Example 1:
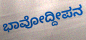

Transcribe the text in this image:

ಭಾವೋದ್ದೀಪನ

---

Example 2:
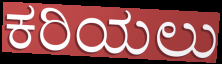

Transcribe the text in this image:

ಕರಿಯಲು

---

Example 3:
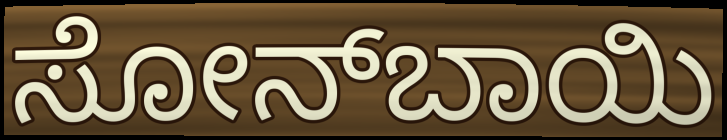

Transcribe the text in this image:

ಸೋನ್‍ಬಾಯಿ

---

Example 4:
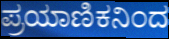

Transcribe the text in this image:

ಪ್ರಯಾಣಿಕನಿಂದ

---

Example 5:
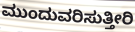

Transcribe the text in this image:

ಮುಂದುವರಿಸುತ್ತೀರಿ